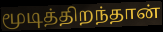
மூடித்திறந்தான்